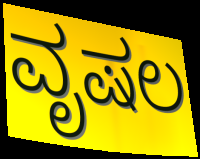
ವೃಷಲ